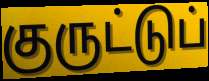
குருட்டுப்